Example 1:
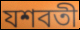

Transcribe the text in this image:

যশবতী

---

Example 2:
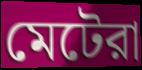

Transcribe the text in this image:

মেটেরা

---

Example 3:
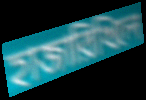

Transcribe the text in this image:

হাজারিখিলে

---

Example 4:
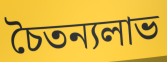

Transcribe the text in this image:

চৈতন্যলাভ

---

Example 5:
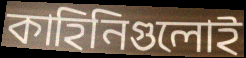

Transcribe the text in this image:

কাহিনিগুলোই